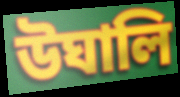
উঘালি